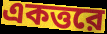
একত্তরে